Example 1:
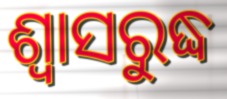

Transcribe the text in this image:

ଶ୍ବାସରୁଦ୍ଧ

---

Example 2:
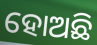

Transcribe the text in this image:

ହୋଅଛି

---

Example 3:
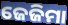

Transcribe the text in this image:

ଜେଜିମା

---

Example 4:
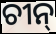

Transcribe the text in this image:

ଚୀନ୍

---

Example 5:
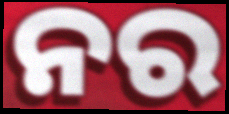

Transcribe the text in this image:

ନର